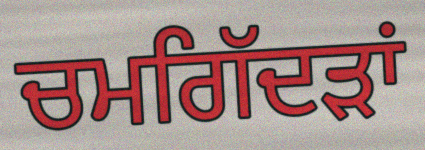
ਚਮਗਿੱਦੜਾਂ